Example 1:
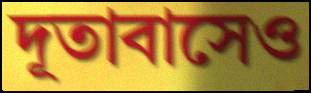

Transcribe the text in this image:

দূতাবাসেও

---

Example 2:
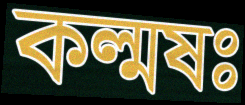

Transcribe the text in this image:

কল্মষঃ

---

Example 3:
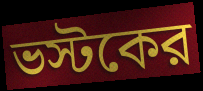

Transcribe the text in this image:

ভস্টকের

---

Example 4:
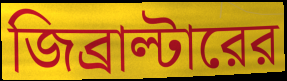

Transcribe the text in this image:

জিব্রাল্টারের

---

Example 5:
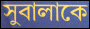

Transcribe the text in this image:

সুবালাকে